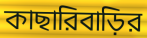
কাছারিবাড়ির